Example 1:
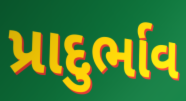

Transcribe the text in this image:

પ્રાદુર્ભાવ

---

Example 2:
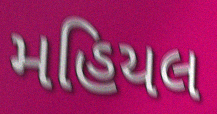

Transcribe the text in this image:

મહિયલ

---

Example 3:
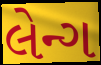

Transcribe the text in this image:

લેન્ગ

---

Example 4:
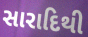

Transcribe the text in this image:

સારાદિથી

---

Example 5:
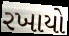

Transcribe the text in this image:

રખાયો